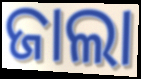
ଜାଲା